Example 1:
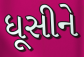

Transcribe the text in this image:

ધૂસીને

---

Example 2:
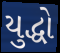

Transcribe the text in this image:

યુદ્ધો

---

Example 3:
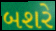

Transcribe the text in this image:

બશરે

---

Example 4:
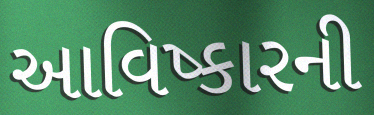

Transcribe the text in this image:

આવિષ્કારની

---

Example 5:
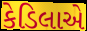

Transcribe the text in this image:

કેડિલાએ